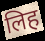
लिह